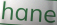
hane